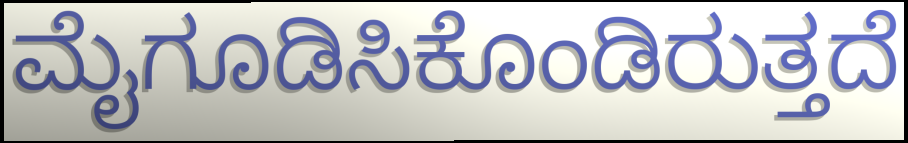
ಮೈಗೂಡಿಸಿಕೊಂಡಿರುತ್ತದೆ